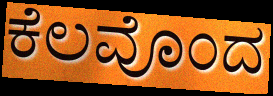
ಕೆಲವೊಂದ